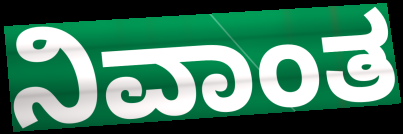
ನಿವಾಂತ